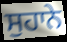
ਸੁਹਾਨੇ